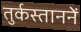
तुर्कस्ताननें